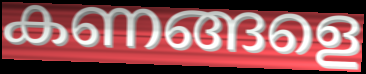
കണങ്ങളെ